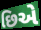
છિએ